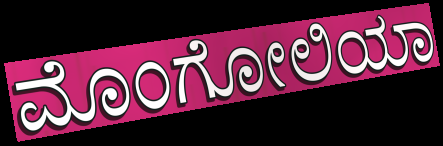
ಮೊಂಗೋಲಿಯಾ